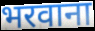
भरवाना